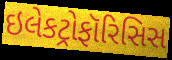
ઇલેકટ્રોફૉરિસિસ